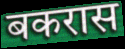
बकरास